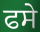
ਫਸੇ